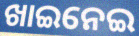
ଖାଇନେଇ